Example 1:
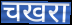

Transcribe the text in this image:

चखरा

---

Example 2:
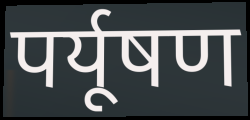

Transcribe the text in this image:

पर्यूषण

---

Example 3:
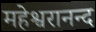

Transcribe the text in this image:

महेश्वरानन्द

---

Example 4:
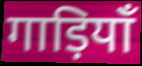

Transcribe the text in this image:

गाड़ियाँ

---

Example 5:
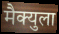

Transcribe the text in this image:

मैक्युला